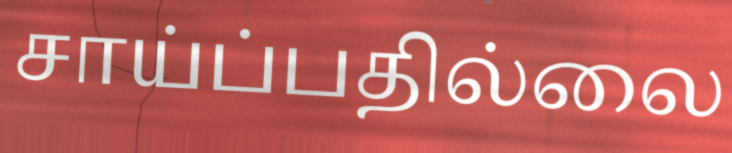
சாய்ப்பதில்லை